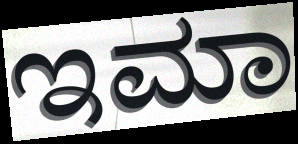
ಇಮಾ